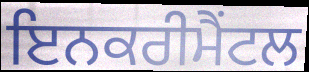
ਇਨਕਰੀਮੈਂਟਲ